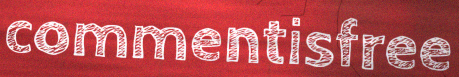
commentisfree